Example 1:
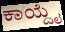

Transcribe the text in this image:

ಕಾಯ್ದೈ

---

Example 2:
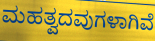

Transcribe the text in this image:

ಮಹತ್ವದವುಗಳಾಗಿವೆ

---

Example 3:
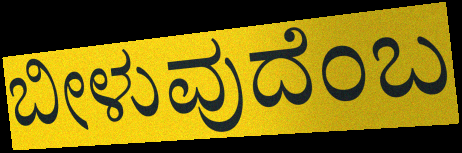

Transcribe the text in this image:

ಬೀಳುವುದೆಂಬ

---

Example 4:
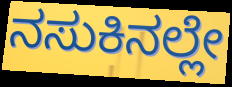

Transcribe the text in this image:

ನಸುಕಿನಲ್ಲೇ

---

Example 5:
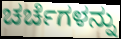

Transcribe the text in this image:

ಚರ್ಚೆಗಳನ್ನು